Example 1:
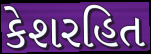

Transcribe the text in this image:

કેશરહિત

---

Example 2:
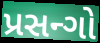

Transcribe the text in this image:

પ્રસન્ગો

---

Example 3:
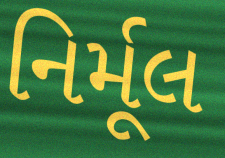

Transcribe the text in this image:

નિર્મૂલ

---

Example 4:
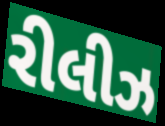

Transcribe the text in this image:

રીલીઝ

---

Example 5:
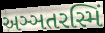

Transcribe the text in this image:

અઞ્ઞતરસ્મિં